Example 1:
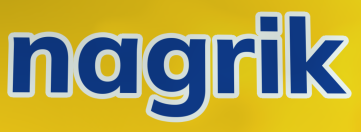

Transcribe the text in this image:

nagrik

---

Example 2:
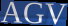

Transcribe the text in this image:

AGV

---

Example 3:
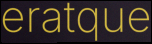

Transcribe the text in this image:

eratque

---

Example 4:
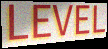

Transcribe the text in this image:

LEVEL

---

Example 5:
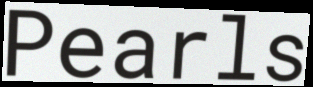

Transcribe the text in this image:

Pearls